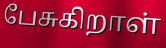
பேசுகிறாள்